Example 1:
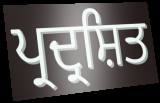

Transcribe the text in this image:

ਪ੍ਰਦ੍ਰਸ਼ਿਤ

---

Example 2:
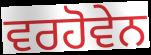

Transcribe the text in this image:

ਵਰਹੋਵੇਨ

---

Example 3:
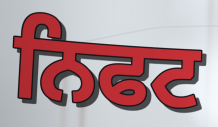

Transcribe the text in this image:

ਨਿਫਟ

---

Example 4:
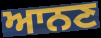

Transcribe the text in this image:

ਆਨਣ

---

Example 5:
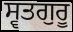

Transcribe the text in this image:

ਸ੍ਵਤਗੁਰੂ